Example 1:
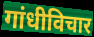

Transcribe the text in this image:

गांधीविचार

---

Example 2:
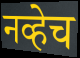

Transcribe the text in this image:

नव्हेच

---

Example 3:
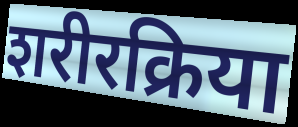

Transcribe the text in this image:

शरीरक्रिया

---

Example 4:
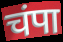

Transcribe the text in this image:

चंपा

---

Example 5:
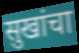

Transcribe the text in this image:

सुखांचा